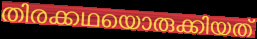
തിരക്കഥയൊരുക്കിയത്